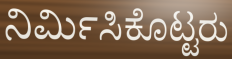
ನಿರ್ಮಿಸಿಕೊಟ್ಟರು